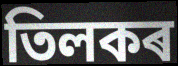
তিলকৰ